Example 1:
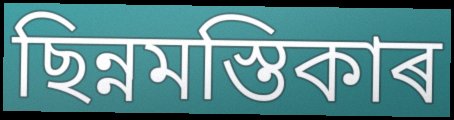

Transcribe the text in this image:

ছিন্নমস্তিকাৰ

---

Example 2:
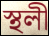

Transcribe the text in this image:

স্থলী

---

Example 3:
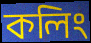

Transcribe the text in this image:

কলিং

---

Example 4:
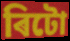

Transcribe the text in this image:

ৰিটো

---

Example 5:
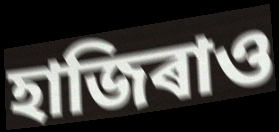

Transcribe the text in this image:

হাজিৰাও